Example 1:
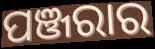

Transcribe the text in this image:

ପଞ୍ଜରାର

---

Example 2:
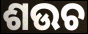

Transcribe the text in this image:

ଶଉଚ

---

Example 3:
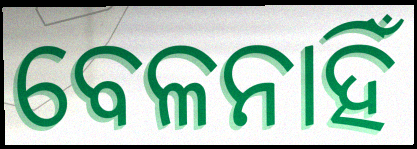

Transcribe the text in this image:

ବେଳନାହିଁ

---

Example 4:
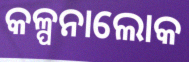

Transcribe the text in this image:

କଳ୍ପନାଲୋକ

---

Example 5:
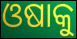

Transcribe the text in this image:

ଓଷାକୁ